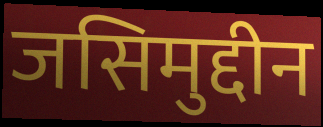
जसिमुद्दीन